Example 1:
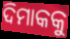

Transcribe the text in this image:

ଦିମାକକୁ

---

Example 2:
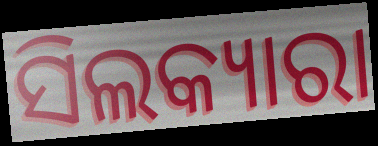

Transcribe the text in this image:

ସିଲକ୍ୟାରା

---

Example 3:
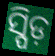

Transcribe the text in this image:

ସ୍ପିଡ଼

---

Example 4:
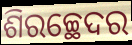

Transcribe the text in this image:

ଶିରଚ୍ଛେଦର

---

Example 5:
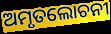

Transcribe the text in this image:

ଅମୃତଲୋଚନୀ